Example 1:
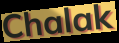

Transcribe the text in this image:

Chalak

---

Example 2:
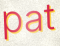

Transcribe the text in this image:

pat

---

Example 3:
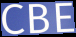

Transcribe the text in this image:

CBE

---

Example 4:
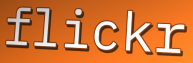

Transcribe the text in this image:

flickr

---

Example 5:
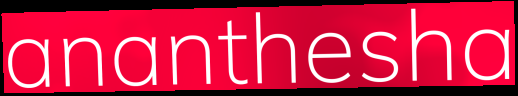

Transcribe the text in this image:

ananthesha